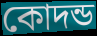
কোদন্ড